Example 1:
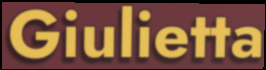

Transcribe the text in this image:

Giulietta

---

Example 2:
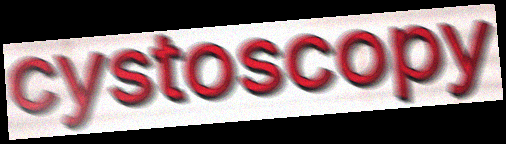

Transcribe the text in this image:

cystoscopy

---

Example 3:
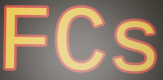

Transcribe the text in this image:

FCs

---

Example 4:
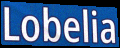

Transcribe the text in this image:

Lobelia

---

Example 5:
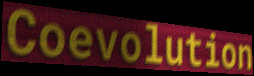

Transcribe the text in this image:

Coevolution